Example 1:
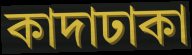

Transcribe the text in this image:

কাদাঢাকা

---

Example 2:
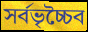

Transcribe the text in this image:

সর্বভৃচ্চৈব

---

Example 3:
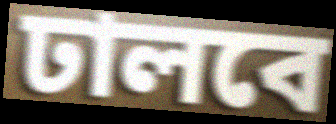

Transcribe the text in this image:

ঢালবে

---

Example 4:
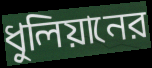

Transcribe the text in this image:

ধুলিয়ানের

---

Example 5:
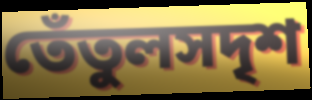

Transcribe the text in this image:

তেঁতুলসদৃশ